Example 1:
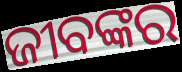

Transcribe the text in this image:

ଜୀବଙ୍କର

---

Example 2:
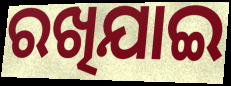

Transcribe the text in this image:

ରଖିଯାଇ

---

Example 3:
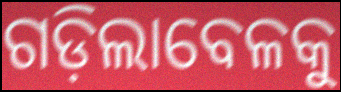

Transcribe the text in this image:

ଗଡ଼ିଲାବେଳକୁ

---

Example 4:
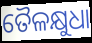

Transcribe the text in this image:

ତୈଳକ୍ଷୁଧା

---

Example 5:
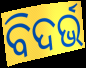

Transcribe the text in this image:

ବିଦର୍ଭ